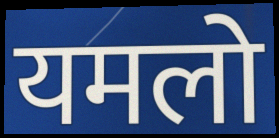
यमलो